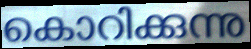
കൊറിക്കുന്നു